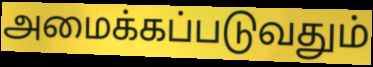
அமைக்கப்படுவதும்